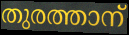
തുരത്താന്